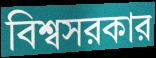
বিশ্বসরকার